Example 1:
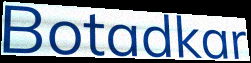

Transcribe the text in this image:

Botadkar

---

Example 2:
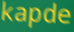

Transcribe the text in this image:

kapde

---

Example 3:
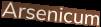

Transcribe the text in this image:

Arsenicum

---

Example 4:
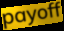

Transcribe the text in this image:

payoff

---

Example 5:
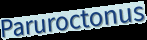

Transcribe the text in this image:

Paruroctonus